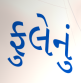
ફુલેનું